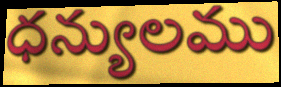
ధన్యులము